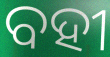
ବହୀ